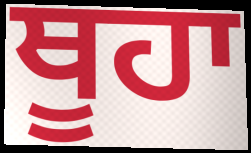
ਥੂਹਾ